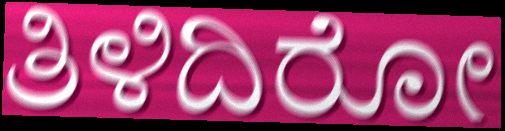
ತಿಳಿದಿರೋ